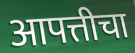
आपत्तीचा